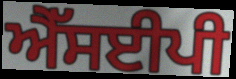
ਐੱਸਈਪੀ